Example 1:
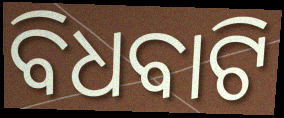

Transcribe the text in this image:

ବିଧବାଟି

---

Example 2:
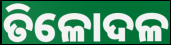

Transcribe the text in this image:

ତିଳୋଦଳ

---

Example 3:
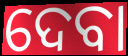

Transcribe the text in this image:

ଦେବା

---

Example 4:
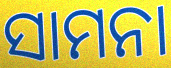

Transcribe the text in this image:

ସାମନା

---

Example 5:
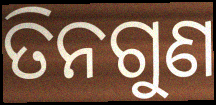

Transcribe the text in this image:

ତିନଗୁଣ